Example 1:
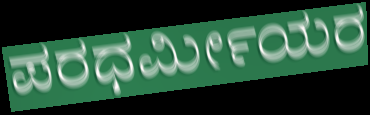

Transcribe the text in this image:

ಪರಧರ್ಮೀಯರ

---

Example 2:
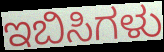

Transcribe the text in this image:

ಇಬಿಸಿಗಳು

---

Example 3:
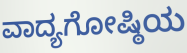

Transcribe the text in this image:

ವಾದ್ಯಗೋಷ್ಠಿಯ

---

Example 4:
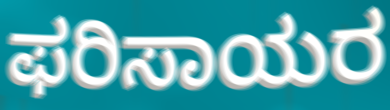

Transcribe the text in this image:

ಫರಿಸಾಯರ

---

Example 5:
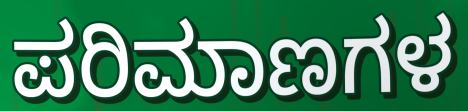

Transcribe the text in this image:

ಪರಿಮಾಣಗಳ